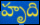
హృది